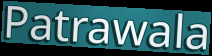
Patrawala